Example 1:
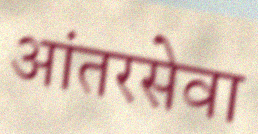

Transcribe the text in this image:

आंतरसेवा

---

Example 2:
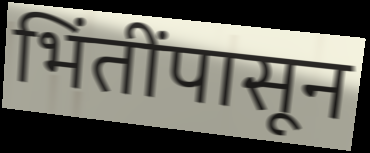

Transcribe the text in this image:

भिंतींपासून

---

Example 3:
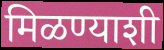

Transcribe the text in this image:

मिळण्याशी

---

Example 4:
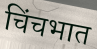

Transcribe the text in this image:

चिंचभात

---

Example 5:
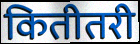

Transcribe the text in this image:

कितीतरी